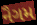
નૈગમ